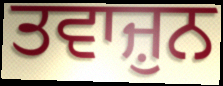
ਤਵਾਜ਼ੁਨ